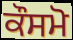
ਕੌਸਮੋ